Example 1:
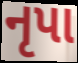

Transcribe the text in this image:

નૃપા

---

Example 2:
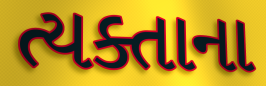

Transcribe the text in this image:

ત્યક્તાના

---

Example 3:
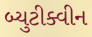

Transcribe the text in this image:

બ્યુટીક્વીન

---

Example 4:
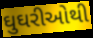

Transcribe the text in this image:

ઘુઘરીઓથી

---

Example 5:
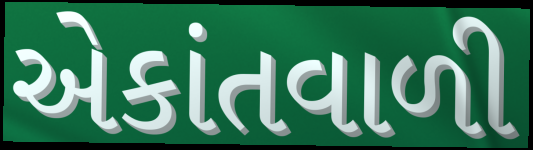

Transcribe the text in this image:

એકાંતવાળી